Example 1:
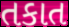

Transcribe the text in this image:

તકાત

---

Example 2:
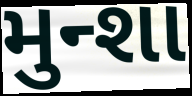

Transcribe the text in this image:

મુન્શા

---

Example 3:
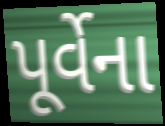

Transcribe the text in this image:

પૂર્વેના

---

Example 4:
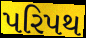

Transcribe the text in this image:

પરિપથ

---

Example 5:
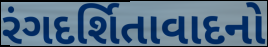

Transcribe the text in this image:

રંગદર્શિતાવાદનો